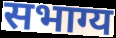
सभाग्य